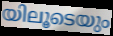
യിലൂടെയും